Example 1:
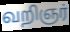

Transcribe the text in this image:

வறிஞர்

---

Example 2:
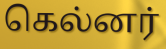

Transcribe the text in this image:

கெல்னர்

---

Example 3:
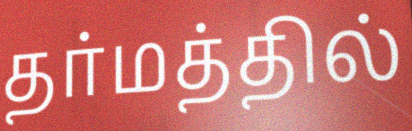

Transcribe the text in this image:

தர்மத்தில்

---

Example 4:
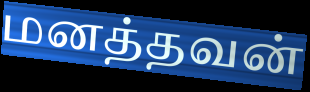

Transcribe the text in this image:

மனத்தவன்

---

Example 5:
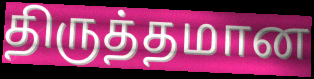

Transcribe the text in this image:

திருத்தமான